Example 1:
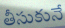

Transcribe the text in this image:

తీసుకునే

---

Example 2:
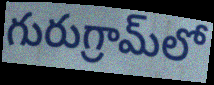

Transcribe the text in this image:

గురుగ్రామ్‌లో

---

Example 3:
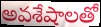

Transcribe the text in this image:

అవశేషాలతో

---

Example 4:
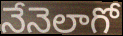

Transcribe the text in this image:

నేనెలాగో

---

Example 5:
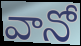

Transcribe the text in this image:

వానో